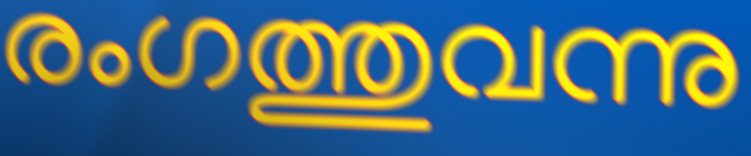
രംഗത്തുവന്നു